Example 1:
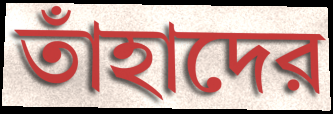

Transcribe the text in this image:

তাঁহাদের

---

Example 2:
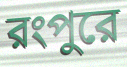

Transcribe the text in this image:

রংপুরে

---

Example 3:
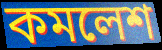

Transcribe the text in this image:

কমলেশ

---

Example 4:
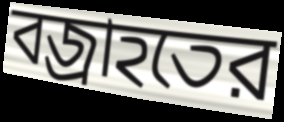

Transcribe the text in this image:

বজ্রাহতের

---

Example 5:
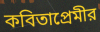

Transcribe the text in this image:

কবিতাপ্রেমীর